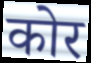
कोर